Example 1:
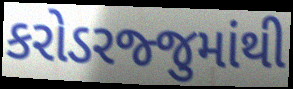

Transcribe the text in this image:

કરોડરજ્જુમાંથી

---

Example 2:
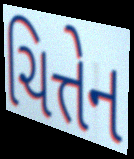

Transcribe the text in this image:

ચિત્તેન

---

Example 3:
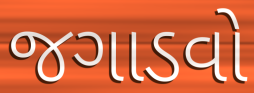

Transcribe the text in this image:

જગાડવો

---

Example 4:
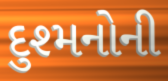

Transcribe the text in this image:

દુશ્મનોની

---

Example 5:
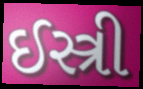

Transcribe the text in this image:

ઈસ્ત્રી